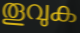
തൂവുക